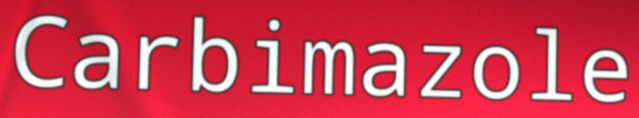
Carbimazole